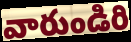
వారుండిరి